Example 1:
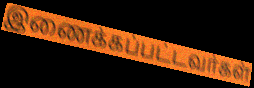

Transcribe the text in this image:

இணைக்கப்பட்டவர்கள்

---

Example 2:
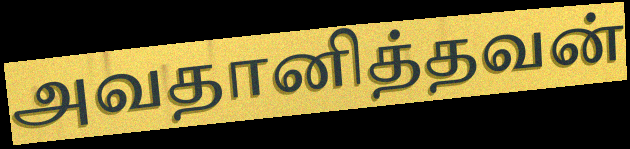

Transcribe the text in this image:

அவதானித்தவன்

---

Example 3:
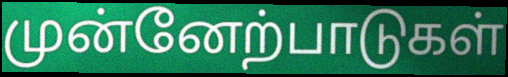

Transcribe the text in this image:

முன்னேற்பாடுகள்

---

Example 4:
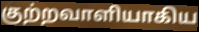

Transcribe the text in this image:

குற்றவாளியாகிய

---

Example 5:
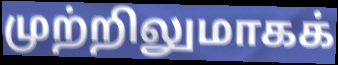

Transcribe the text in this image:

முற்றிலுமாகக்